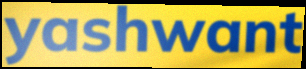
yashwant